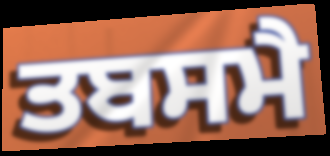
ਤਬਸਮੈ